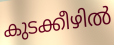
കുടക്കീഴിൽ